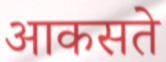
आकसते